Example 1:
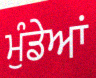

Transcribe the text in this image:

ਮੁੰਡੇਆਂ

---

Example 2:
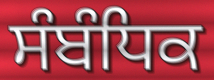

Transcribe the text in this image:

ਸੰਬੰਧਿਕ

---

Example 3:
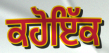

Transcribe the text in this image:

ਕਹੋਇੱਕ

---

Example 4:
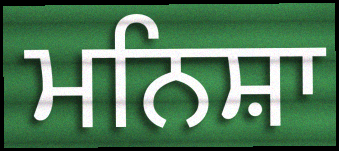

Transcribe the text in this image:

ਮਨਿਸ਼ਾ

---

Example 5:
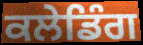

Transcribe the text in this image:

ਕਲੇਡਿੰਗ